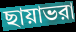
ছায়াভরা